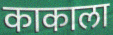
काकाला